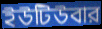
ইউটিউবার